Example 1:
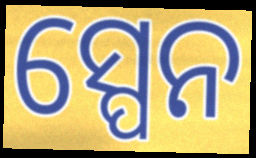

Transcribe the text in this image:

ସ୍ପେନ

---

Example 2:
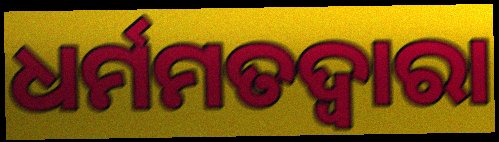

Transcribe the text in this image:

ଧର୍ମମତଦ୍ୱାରା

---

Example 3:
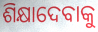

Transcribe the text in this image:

ଶିକ୍ଷାଦେବାକୁ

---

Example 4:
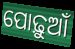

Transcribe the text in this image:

ପୋଢ଼ୁଆଁ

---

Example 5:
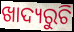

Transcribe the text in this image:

ଖାଦ୍ୟରୁଚି